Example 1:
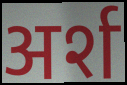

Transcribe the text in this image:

अर्श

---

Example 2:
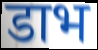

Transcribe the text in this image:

डाभ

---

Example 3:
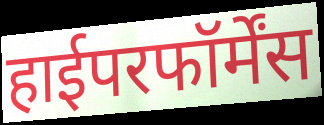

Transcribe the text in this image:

हाईपरफॉर्मेंस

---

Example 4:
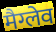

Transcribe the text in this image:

मैग्लेव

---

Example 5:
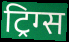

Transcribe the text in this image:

ट्रिग्स